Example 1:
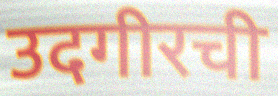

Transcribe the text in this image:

उदगीरची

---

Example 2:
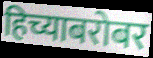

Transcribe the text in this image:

हिच्याबरोबर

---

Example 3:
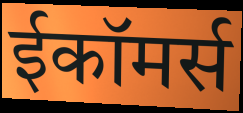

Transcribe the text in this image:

ईकॉमर्स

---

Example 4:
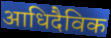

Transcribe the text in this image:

आधिदैविक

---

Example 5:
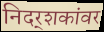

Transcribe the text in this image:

निदर्शकांवर